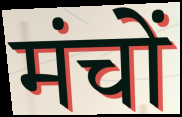
मंचों